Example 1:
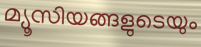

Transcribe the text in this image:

മ്യൂസിയങ്ങളുടെയും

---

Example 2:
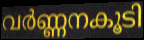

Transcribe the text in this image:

വർണ്ണനകൂടി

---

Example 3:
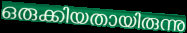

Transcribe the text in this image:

ഒരുക്കിയതായിരുന്നു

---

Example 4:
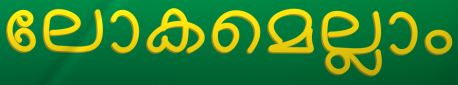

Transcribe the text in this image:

ലോകമെല്ലാം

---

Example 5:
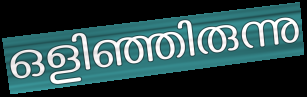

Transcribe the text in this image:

ഒളിഞ്ഞിരുന്നു